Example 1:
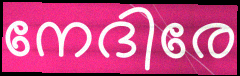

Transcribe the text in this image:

നേദിരേ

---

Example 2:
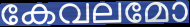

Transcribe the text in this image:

കേവലമോ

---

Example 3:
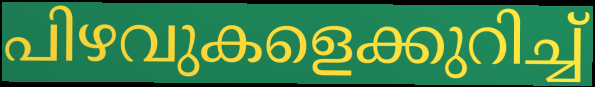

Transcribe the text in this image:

പിഴവുകളെക്കുറിച്ച്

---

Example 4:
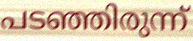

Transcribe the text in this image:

പടഞ്ഞിരുന്ന്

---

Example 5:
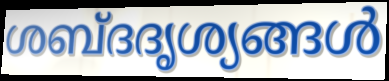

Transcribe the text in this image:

ശബ്ദദൃശ്യങ്ങൾ